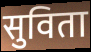
सुविता